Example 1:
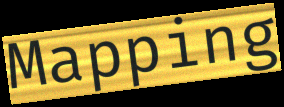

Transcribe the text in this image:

Mapping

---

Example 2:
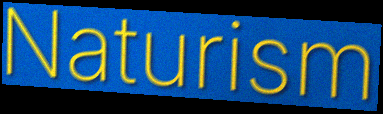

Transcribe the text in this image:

Naturism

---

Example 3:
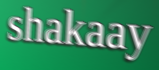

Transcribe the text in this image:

shakaay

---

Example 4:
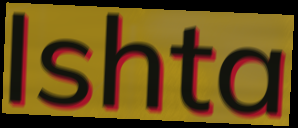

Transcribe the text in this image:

Ishta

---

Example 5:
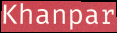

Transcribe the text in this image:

Khanpar